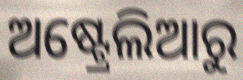
ଅଷ୍ଟ୍ରେଲିଆରୁ